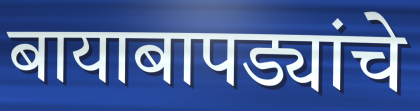
बायाबापड्यांचे